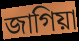
জাগিয়া